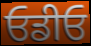
ਓਡੀਓ